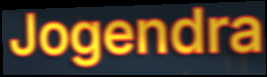
Jogendra